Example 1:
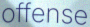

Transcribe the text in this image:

offense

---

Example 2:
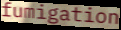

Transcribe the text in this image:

fumigation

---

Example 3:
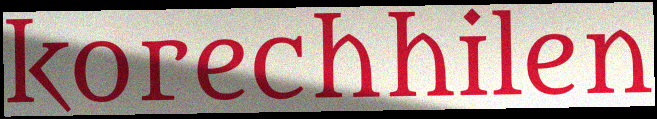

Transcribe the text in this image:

korechhilen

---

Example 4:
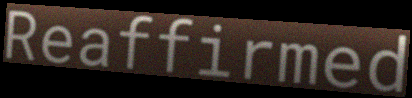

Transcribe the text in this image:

Reaffirmed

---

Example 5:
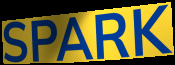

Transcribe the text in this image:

SPARK